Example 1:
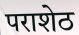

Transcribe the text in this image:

पराशेठ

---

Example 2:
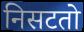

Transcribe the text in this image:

निसटतो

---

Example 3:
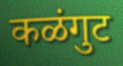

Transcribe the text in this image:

कळंगुट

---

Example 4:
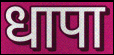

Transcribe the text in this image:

धापा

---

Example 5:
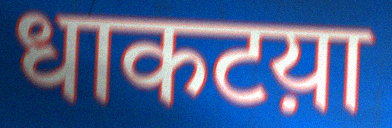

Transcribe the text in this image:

धाकटय़ा